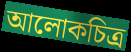
আলোকচিত্র